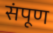
संपूण